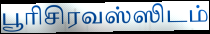
பூரிசிரவஸ்ஸிடம்